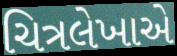
ચિત્રલેખાએ